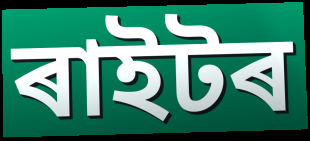
ৰাইটৰ